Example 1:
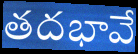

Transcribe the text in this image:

తదభావే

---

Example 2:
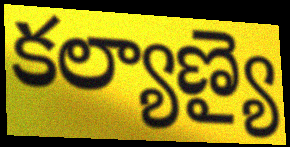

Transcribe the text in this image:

కల్యాణ్యై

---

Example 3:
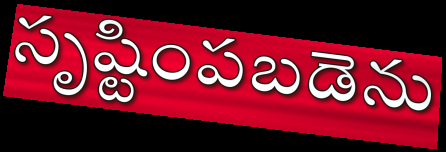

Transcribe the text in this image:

సృష్టింపబడెను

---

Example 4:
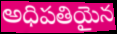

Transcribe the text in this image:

అధిపతియైన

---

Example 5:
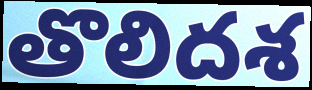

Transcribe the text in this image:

తొలిదశ